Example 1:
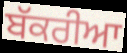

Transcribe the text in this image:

ਬੱਕਰੀਆ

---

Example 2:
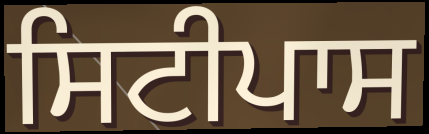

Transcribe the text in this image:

ਸਿਟੀਪਾਸ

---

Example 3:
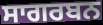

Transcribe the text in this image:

ਸਾਗਰਬਨ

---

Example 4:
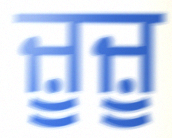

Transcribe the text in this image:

ਜ਼ੂਜ਼ੂ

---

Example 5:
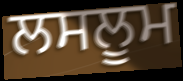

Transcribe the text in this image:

ਲਸਲੂਮ